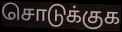
சொடுக்குக